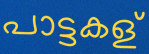
പാട്ടകള്